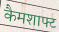
कैमशाफ्ट